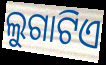
ଲୁଗାଟିଏ